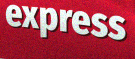
express